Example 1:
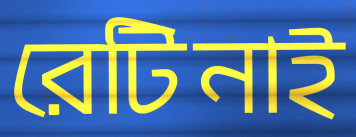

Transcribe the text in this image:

রেটিনাই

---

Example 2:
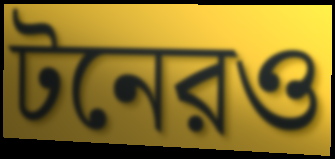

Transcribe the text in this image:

টনেরও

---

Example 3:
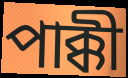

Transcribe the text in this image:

পাক্কী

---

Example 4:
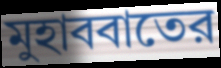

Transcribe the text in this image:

মুহাববাতের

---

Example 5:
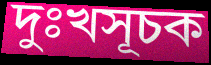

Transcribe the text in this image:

দুঃখসূচক